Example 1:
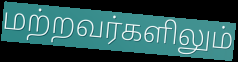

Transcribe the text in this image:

மற்றவர்களிலும்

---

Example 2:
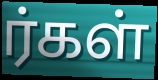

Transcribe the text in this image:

ர்கள்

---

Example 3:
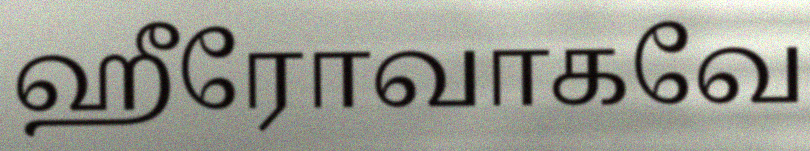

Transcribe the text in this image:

ஹீரோவாகவே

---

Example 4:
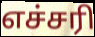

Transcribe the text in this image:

எச்சரி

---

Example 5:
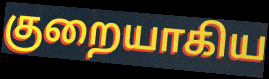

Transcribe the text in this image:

குறையாகிய